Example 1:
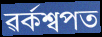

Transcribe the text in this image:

ৱৰ্কশ্বপত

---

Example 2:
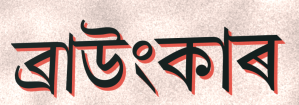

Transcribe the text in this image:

ব্ৰাউংকাৰ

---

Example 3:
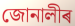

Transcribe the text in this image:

জোনালীৰ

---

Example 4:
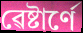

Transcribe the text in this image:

ৱেষ্টাৰ্ণে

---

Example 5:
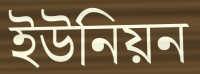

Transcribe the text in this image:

ইউনিয়ন